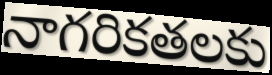
నాగరికతలకు